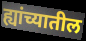
ह्यांच्यातील